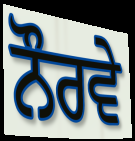
ਨੌਰਵੇ